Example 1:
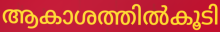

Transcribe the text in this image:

ആകാശത്തിൽകൂടി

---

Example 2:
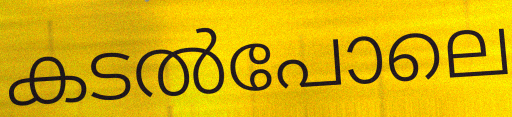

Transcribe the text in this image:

കടൽപോലെ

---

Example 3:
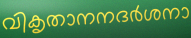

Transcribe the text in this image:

വികൃതാനനദർശനാ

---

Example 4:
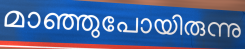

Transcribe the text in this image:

മാഞ്ഞുപോയിരുന്നു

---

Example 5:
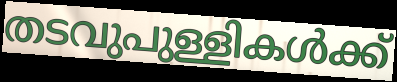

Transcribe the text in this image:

തടവുപുള്ളികൾക്ക്